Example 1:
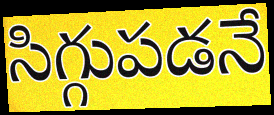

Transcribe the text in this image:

సిగ్గుపడనే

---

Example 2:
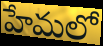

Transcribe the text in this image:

హేమలో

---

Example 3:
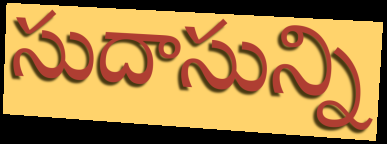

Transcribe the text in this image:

సుదాసున్ని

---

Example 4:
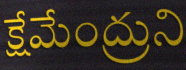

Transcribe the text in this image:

క్షేమేంద్రుని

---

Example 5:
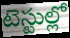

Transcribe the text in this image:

టెస్టుల్లో